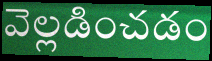
వెల్లడించడం